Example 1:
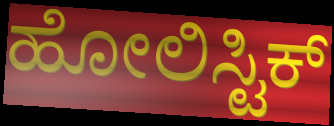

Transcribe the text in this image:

ಹೋಲಿಸ್ಟಿಕ್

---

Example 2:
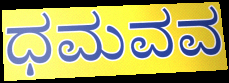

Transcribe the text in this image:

ಧಮವವ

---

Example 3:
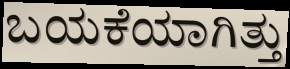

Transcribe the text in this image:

ಬಯಕೆಯಾಗಿತ್ತು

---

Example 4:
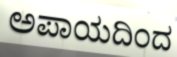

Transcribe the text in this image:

ಅಪಾಯದಿಂದ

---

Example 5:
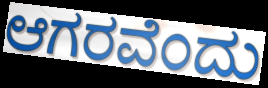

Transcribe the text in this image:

ಆಗರವೆಂದು